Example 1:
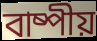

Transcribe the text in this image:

বাষ্পীয়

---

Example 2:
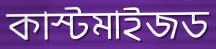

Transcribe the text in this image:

কাস্টমাইজড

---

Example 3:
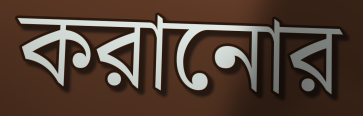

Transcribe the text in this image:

করানোর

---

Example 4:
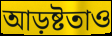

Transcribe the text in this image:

আড়ষ্টতাও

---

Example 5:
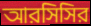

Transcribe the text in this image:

আরসিসির